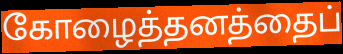
கோழைத்தனத்தைப்